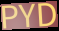
PYD